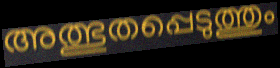
അത്ഭുതപ്പെടുത്തും